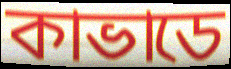
কাভাডে